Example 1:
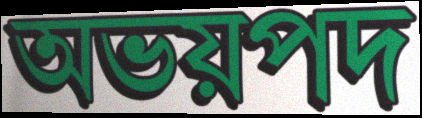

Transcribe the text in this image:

অভয়পদ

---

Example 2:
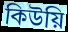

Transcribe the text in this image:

কিউয়ি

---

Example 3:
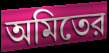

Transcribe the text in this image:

অমিতের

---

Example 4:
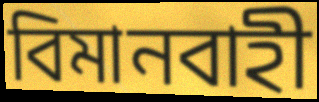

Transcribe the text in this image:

বিমানবাহী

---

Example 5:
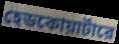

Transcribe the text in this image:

হেডকোয়ার্টারে